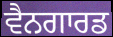
ਵੈਨਗਾਰਡ